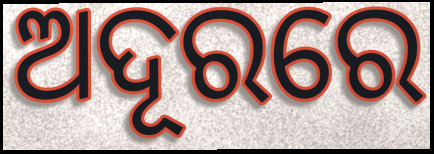
ଅଦୂରରେ